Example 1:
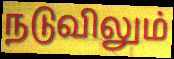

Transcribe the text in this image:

நடுவிலும்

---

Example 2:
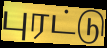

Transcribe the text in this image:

புரட்டு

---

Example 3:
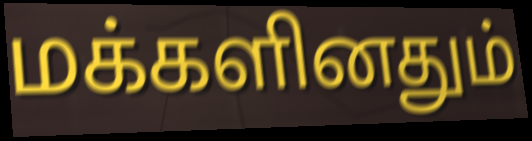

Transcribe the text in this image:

மக்களினதும்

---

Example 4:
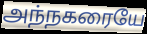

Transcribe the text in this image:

அந்நகரையே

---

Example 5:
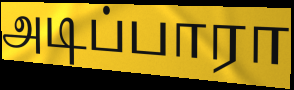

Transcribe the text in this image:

அடிப்பாரா